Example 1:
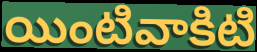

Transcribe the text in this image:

యింటివాకిటి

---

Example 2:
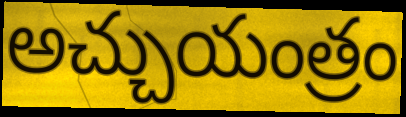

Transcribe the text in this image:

అచ్చుయంత్రం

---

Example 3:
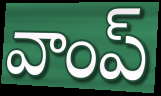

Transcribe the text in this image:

వాంప్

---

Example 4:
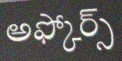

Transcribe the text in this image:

అఫ్కోర్స్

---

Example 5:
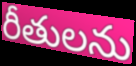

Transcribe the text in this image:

రీతులను